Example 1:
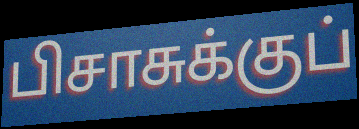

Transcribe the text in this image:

பிசாசுக்குப்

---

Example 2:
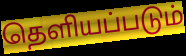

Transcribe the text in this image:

தெளியப்படும்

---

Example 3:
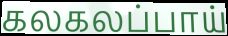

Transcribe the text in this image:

கலகலப்பாய்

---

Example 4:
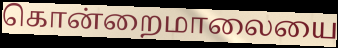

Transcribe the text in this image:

கொன்றைமாலையை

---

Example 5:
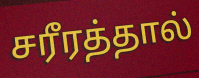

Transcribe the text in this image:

சரீரத்தால்